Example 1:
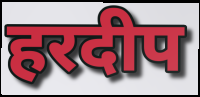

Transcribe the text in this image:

हरदीप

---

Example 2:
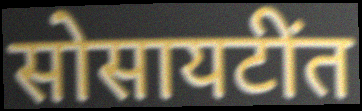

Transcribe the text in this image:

सोसायटींत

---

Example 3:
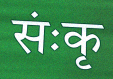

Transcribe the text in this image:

संःकृ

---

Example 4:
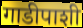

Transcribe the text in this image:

गाडीपाशी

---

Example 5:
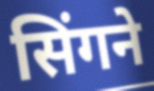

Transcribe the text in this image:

सिंगने